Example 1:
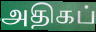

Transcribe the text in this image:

அதிகப்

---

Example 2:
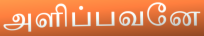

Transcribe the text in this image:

அளிப்பவனே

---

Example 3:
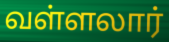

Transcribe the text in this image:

வள்ளலார்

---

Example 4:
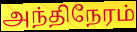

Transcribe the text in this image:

அந்திநேரம்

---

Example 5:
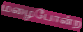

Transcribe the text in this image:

மழைபோன்ற